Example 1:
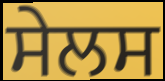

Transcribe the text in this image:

ਸੇਲਸ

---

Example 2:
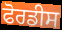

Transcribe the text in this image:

ਫੋਰਡੀਸ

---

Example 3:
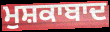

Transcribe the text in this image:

ਮੁਸ਼ਕਾਬਾਦ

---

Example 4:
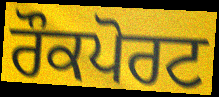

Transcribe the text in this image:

ਰੌਕਪੋਰਟ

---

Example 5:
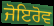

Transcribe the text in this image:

ਜੋਇਰੋਵ